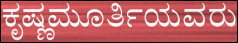
ಕೃಷ್ಣಮೂರ್ತಿಯವರು